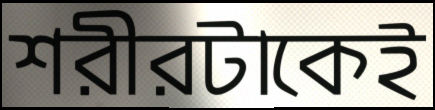
শরীরটাকেই